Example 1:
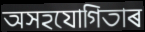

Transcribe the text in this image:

অসহযোগিতাৰ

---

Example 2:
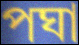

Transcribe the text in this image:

পঘা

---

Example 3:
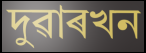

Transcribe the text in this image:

দুৱাৰখন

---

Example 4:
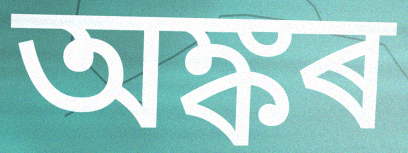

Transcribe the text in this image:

অঙ্কৰ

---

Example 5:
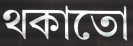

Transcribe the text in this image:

থকাতো